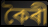
কৈৰী